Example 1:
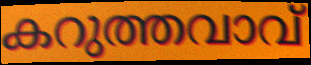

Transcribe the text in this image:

കറുത്തവാവ്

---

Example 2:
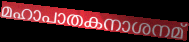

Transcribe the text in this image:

മഹാപാതകനാശനമ്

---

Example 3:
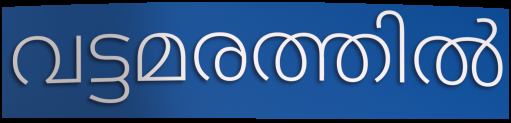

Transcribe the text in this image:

വട്ടമരത്തിൽ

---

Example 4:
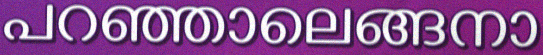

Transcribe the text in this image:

പറഞ്ഞാലെങ്ങനാ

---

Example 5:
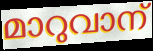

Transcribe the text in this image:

മാറുവാന്